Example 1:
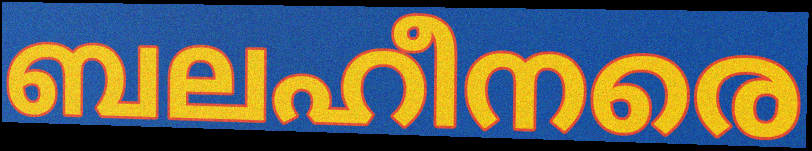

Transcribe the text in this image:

ബലഹീനരെ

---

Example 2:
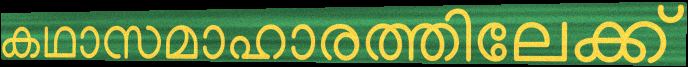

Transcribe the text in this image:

കഥാസമാഹാരത്തിലേക്ക്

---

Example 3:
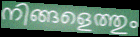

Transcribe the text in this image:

നിങ്ങളെത്തും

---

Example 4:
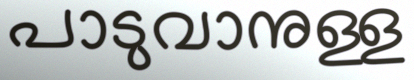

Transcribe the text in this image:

പാടുവാനുള്ള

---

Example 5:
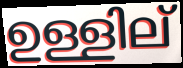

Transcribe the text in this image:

ഉള്ളില്